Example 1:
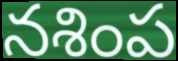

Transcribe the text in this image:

నశింప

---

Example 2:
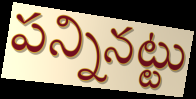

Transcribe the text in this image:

పన్నినట్టు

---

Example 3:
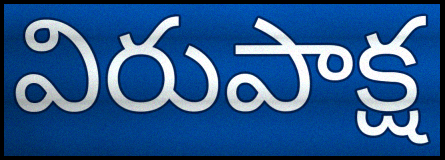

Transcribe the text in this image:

విరుపాక్ష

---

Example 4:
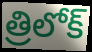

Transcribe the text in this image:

త్రిలోక్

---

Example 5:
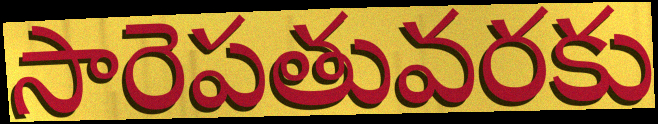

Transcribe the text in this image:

సారెపతువరకు